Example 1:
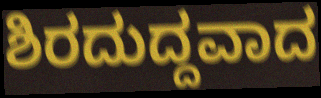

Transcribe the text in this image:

ಶಿರದುದ್ದವಾದ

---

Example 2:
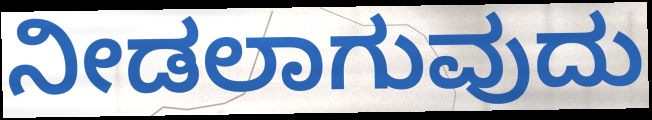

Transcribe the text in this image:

ನೀಡಲಾಗುವುದು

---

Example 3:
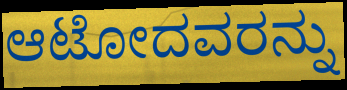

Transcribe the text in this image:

ಆಟೋದವರನ್ನು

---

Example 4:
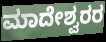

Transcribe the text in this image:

ಮಾದೇಶ್ವರರ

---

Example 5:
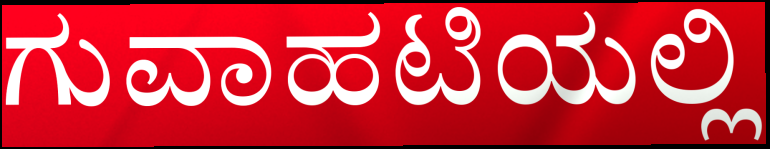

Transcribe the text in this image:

ಗುವಾಹಟಿಯಲ್ಲಿ